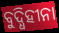
ବୁଦ୍ଧିହୀନା